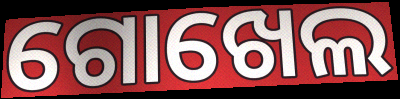
ଗୋଖେଲ